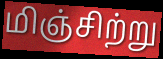
மிஞ்சிற்று